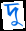
দু